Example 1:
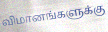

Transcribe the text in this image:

விமானங்களுக்கு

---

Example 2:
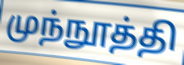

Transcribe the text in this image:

முந்நூத்தி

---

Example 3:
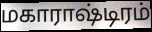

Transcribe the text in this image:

மகாராஷ்டிரம்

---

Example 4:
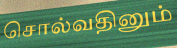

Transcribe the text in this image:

சொல்வதினும்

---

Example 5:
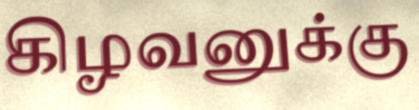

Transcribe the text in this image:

கிழவனுக்கு